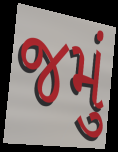
જમું